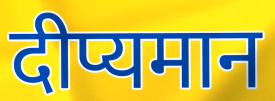
दीप्यमान